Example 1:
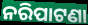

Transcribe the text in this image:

ନରିପାଟଣା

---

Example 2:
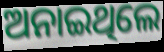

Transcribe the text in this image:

ଅନାଇଥିଲେ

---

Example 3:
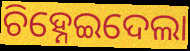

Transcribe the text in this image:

ଚିହ୍ନେଇଦେଲା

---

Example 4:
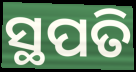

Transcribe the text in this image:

ସ୍ଥପତି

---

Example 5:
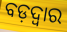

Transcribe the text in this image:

ବଡ଼ଦ୍ୱାର